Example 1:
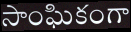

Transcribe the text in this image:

సాంఘికంగా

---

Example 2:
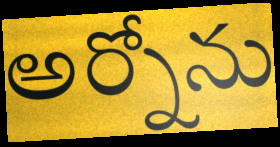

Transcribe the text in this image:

అర్నోను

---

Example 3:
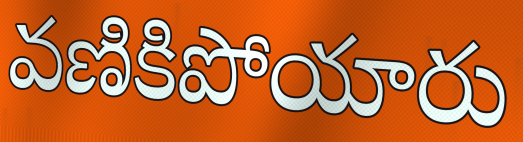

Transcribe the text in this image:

వణికిపోయారు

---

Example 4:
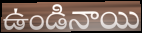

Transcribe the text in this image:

ఉండినాయి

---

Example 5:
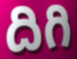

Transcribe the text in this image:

దిగి